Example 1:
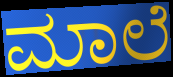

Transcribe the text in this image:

ಮಾಲೆ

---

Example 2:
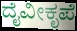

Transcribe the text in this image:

ದೈವೀಕೃಪೆ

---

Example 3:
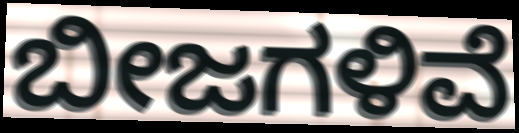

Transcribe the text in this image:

ಬೀಜಗಳಿವೆ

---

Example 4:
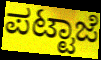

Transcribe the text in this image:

ಪಟ್ಟಾಜೆ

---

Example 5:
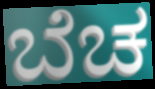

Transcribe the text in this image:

ಬೆಚ